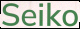
Seiko